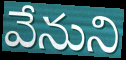
వేనుని